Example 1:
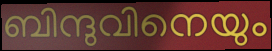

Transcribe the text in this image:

ബിന്ദുവിനെയും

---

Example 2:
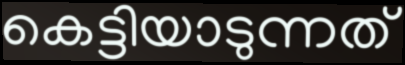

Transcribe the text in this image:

കെട്ടിയാടുന്നത്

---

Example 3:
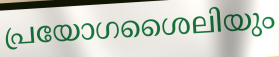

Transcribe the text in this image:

പ്രയോഗശൈലിയും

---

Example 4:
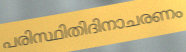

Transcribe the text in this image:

പരിസ്ഥിതിദിനാചരണം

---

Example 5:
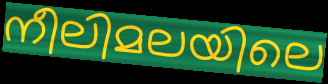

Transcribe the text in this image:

നീലിമലയിലെ